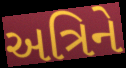
અત્રિને